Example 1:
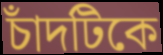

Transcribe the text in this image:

চাঁদটিকে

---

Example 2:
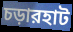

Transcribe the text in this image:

চড়ারহাট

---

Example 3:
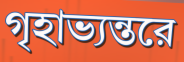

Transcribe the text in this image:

গৃহাভ্যন্তরে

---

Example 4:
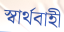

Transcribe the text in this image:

স্বার্থবাহী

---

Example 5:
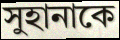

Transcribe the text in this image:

সুহানাকে